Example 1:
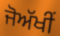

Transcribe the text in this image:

ਜੋਅੱਖੀਂ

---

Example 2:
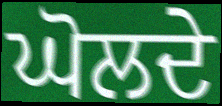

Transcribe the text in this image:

ਘੋਲਦੇ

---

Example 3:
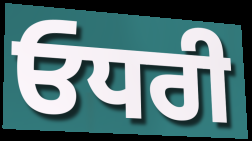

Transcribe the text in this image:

ਓਧਰੀ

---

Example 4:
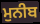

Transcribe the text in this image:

ਮੁਨੀਬ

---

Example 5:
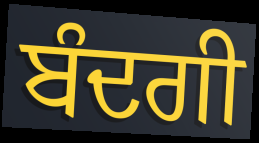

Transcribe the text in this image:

ਬੰਦਗੀ